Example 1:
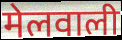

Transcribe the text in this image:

मेलवाली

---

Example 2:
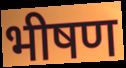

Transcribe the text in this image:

भीषण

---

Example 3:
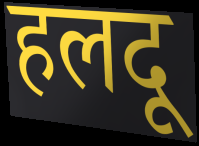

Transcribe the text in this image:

हलदू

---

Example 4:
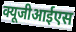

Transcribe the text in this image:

क्यूजीआईएस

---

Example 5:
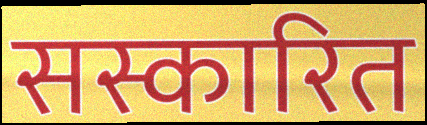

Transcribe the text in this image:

सस्कारित